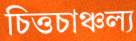
চিত্তচাঞ্চল্য